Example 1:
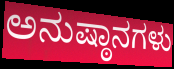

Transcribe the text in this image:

ಅನುಷ್ಠಾನಗಳು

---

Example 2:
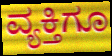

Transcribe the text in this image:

ವ್ಯಕ್ತಿಗೂ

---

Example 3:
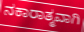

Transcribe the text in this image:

ನಕಾರಾತ್ಮವಾಗಿ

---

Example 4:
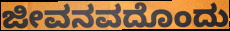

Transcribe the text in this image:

ಜೀವನವದೊಂದು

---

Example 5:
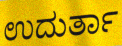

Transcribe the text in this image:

ಉದುರ್ತಾ